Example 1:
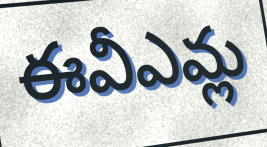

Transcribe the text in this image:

ఈవీఎమ్ల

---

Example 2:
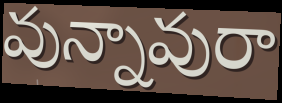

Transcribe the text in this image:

వున్నావురా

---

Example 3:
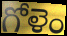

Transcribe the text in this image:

గోళెం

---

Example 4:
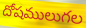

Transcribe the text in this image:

దోషములుగల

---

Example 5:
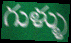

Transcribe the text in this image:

గుళ్ళు